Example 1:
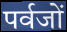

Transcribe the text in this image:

पर्वजों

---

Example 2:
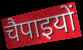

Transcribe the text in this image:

चैपाइयों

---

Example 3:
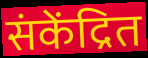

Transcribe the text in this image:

संकेंद्रित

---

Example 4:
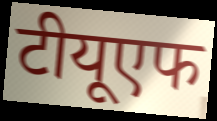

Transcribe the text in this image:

टीयूएफ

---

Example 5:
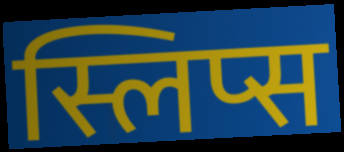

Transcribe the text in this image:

स्लिप्स